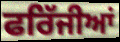
ਫਰਿੱਜੀਆਂ